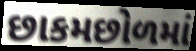
છાકમછોળમાં